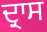
ਦ੍ਰਾਸ